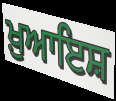
ਖ਼ੁਆਇਸ਼